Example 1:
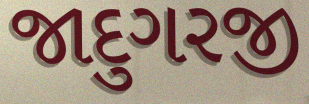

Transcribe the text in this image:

જાદુગરજી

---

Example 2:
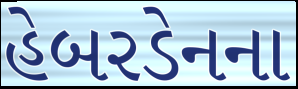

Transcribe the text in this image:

હેબરડેનના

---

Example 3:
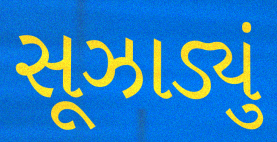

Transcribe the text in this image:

સૂઝાડ્યું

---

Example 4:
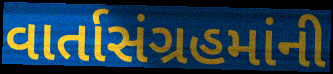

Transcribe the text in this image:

વાર્તાસંગ્રહમાંની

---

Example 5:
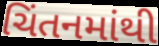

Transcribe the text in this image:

ચિંતનમાંથી